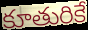
కూతురికే